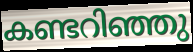
കണ്ടറിഞ്ഞു